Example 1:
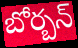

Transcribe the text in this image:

బోర్బన్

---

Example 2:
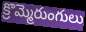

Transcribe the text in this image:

క్రొమ్మెరుంగులు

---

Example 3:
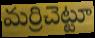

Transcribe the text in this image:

మర్రిచెట్టూ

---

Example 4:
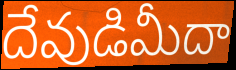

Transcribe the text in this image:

దేవుడిమీదా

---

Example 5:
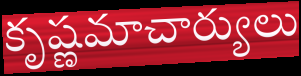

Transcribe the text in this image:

కృష్ణమాచార్యులు